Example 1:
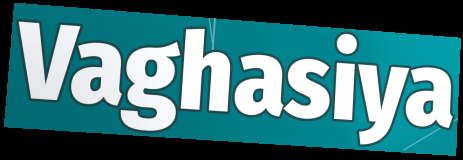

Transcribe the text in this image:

Vaghasiya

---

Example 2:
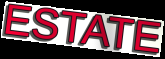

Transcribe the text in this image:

ESTATE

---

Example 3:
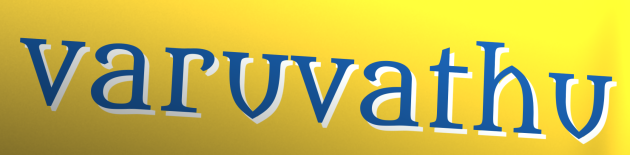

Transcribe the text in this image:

varuvathu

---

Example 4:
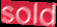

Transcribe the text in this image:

sold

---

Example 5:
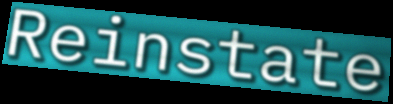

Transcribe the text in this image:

Reinstate